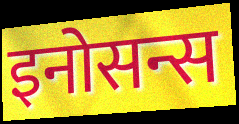
इनोसन्स